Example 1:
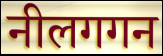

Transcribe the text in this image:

नीलगगन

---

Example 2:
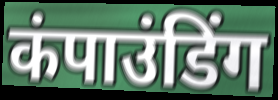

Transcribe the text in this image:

कंपाउंडिंग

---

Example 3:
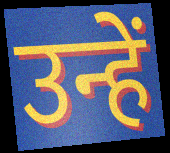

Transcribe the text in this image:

उन्हें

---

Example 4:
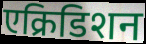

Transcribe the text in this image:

एक्रिडिशन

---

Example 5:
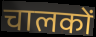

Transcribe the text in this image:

चालकों